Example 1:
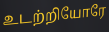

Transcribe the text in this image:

உடற்றியோரே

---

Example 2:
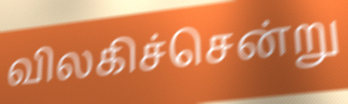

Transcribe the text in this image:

விலகிச்சென்று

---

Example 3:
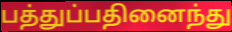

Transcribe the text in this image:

பத்துப்பதினைந்து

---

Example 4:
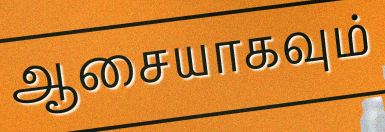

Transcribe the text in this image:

ஆசையாகவும்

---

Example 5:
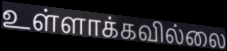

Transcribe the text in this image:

உள்ளாக்கவில்லை